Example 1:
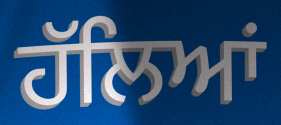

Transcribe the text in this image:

ਹੱਲਿਆਂ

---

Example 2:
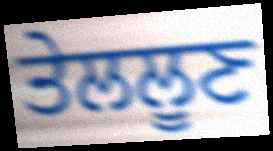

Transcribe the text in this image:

ਤੇਲਲੂਣ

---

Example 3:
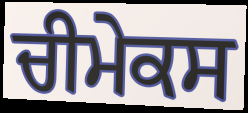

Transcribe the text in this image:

ਚੀਮੇਕਸ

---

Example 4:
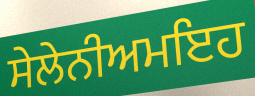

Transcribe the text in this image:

ਸੇਲੇਨੀਅਮਇਹ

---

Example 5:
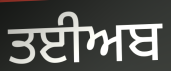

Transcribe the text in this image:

ਤਈਅਬ